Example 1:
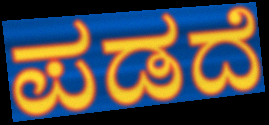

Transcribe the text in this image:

ಪಡದೆ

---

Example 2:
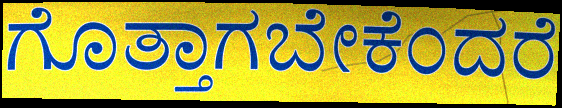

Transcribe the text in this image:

ಗೊತ್ತಾಗಬೇಕೆಂದರೆ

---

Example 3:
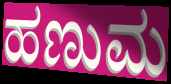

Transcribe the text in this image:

ಹಣುಮ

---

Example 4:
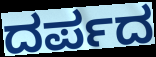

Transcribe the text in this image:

ದರ್ಪದ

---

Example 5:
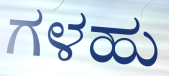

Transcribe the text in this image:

ಗಳಹು